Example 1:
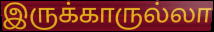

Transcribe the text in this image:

இருக்காருல்லா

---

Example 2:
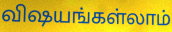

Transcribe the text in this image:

விஷயங்கள்லாம்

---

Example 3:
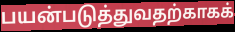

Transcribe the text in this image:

பயன்படுத்துவதற்காகக்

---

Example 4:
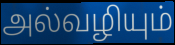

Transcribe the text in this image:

அல்வழியும்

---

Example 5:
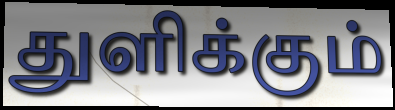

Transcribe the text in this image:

துளிக்கும்